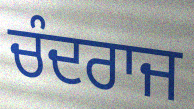
ਚੰਦਰਾਜ